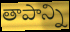
తాపాన్ని